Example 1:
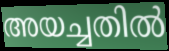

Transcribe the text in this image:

അയച്ചതിൽ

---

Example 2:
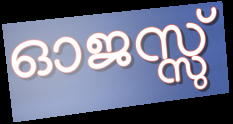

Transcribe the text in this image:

ഓജസ്സു്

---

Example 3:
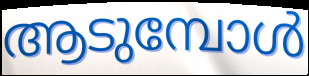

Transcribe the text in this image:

ആടുമ്പോൾ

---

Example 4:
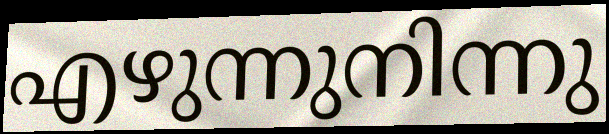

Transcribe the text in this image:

എഴുന്നുനിന്നു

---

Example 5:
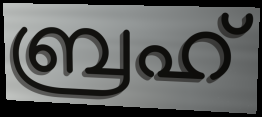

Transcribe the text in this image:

ബ്രഹ്